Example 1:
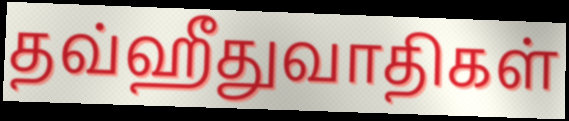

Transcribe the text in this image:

தவ்ஹீதுவாதிகள்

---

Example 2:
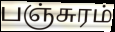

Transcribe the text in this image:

பஞ்சுரம்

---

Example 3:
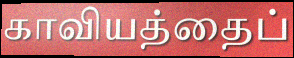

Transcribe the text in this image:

காவியத்தைப்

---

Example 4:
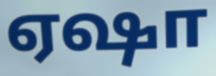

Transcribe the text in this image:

ஏஷா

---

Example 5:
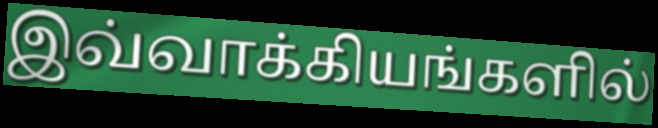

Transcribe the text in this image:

இவ்வாக்கியங்களில்